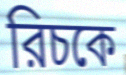
রিচকে